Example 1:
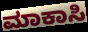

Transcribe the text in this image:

ಮಾಕಾಸಿ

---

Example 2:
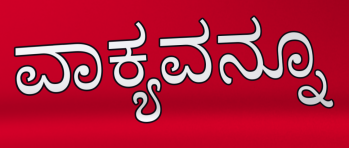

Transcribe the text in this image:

ವಾಕ್ಯವನ್ನೂ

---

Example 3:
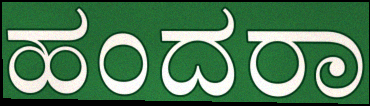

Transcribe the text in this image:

ಹಂದರಾ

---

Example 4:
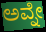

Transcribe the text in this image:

ಅವ್ನೇ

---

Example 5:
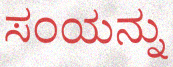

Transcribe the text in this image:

ಸಂಯನ್ನು